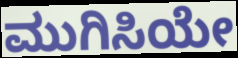
ಮುಗಿಸಿಯೇ